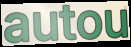
autou